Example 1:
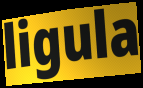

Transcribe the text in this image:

ligula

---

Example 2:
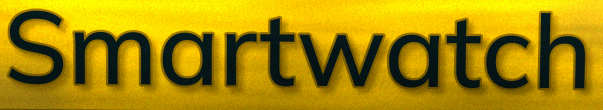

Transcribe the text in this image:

Smartwatch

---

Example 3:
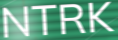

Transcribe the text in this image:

NTRK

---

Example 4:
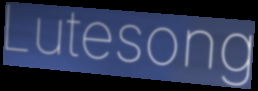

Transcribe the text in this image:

Lutesong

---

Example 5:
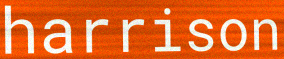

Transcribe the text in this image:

harrison